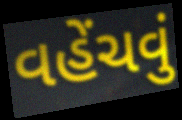
વહેંચવું